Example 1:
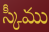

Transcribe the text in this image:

స్కీము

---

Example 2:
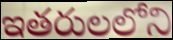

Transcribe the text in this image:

ఇతరులలోని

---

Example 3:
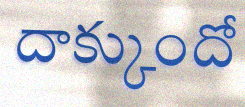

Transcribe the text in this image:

దాక్కుందో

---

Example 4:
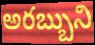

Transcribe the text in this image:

అరబ్బుని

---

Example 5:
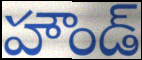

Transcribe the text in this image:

హౌండ్